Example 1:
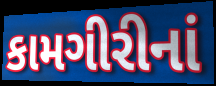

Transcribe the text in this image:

કામગીરીનાં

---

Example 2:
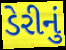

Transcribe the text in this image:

ડેરીનું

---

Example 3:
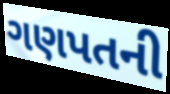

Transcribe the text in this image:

ગણપતની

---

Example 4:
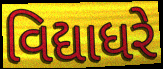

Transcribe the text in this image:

વિદ્યાધરે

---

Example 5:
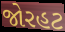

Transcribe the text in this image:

જોરહટ